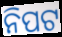
ନିପଟ